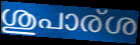
ശുപാര്ശ